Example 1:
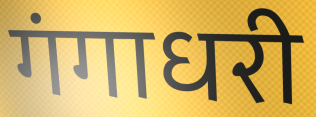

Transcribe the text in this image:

गंगाधरी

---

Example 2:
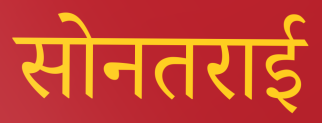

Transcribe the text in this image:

सोनतराई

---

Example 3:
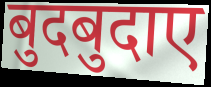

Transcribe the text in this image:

बुदबुदाए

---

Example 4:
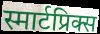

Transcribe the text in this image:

स्मार्टप्रिक्स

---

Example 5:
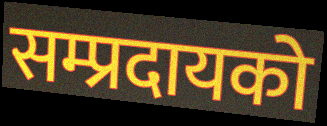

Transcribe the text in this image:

सम्प्रदायको